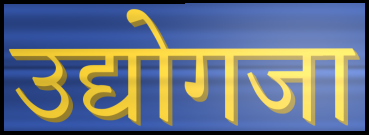
उद्योगजा